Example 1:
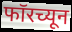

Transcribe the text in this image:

फॉरच्यून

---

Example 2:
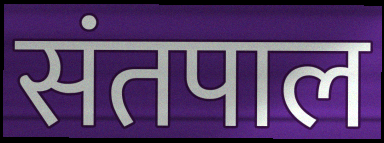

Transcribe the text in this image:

संतपाल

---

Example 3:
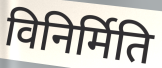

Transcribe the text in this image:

विनिर्मिति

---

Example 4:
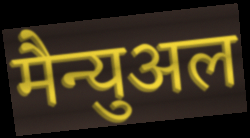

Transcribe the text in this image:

मैन्युअल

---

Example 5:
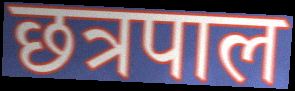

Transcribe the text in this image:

छत्रपाल